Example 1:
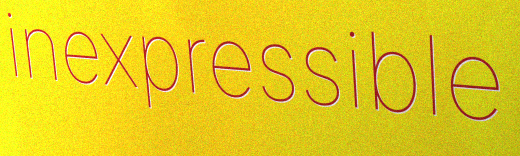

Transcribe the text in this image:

inexpressible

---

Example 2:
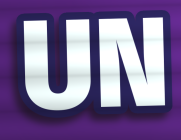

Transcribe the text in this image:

UN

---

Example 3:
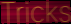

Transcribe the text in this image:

Tricks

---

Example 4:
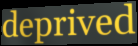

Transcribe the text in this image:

deprived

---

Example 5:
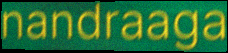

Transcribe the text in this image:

nandraaga